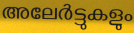
അലേർട്ടുകളും